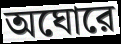
অঘোরে